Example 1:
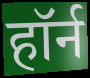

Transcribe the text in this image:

हॉर्न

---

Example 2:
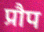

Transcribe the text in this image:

प्रौप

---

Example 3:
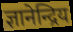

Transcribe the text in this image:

ज्ञानेन्द्रिय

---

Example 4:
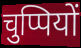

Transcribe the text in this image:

चुप्पियों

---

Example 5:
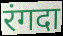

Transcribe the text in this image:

रंगदा